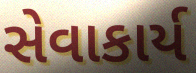
સેવાકાર્ય